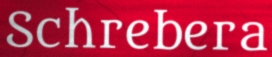
Schrebera